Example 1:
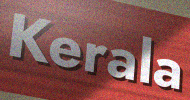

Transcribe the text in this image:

Kerala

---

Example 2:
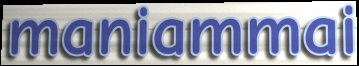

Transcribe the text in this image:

maniammai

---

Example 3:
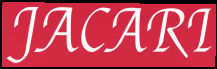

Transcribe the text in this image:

JACARI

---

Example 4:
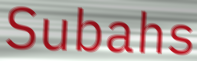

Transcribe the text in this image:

Subahs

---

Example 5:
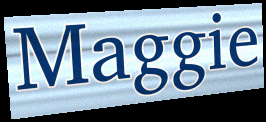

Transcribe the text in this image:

Maggie